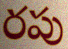
రపు